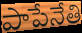
పాపేనేతి